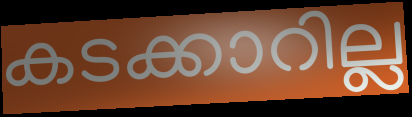
കടക്കാറില്ല